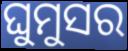
ଘୁମୁସର